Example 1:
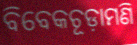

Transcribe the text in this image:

ବିବେକଚୂଡ଼ାମଣି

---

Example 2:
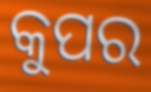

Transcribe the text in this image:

କୁପର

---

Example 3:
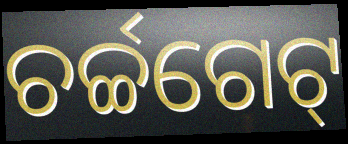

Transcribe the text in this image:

ଚର୍ଚ୍ଚଗେଟ୍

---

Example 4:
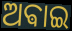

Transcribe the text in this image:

ଅଵାଇ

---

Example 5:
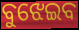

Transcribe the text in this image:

ବୁଝେଇବ